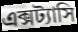
এক্সট্যাসি